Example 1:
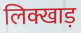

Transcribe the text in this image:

लिक्खाड़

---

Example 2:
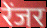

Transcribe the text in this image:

रेंजर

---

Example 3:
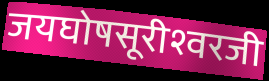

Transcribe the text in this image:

जयघोषसूरीश्वरजी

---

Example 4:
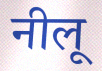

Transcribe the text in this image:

नीलू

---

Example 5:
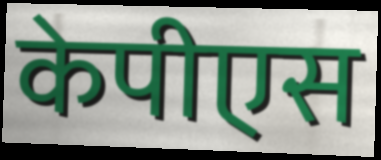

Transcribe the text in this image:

केपीएस